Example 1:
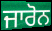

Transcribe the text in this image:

ਜਾਰੋਨ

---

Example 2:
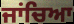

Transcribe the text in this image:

ਜਾਂਚਿਆ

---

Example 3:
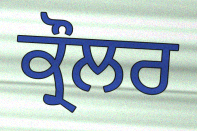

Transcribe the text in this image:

ਕ੍ਰੌਲਰ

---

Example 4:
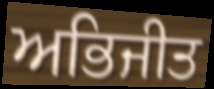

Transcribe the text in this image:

ਅਭਿਜੀਤ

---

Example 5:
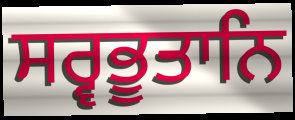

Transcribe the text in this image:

ਸਰ੍ਵਭੂਤਾਨਿ